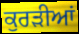
ਕੁਰੜੀਆਂ